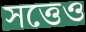
সত্তেও